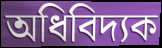
অধিবিদ্যক